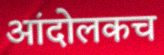
आंदोलकच